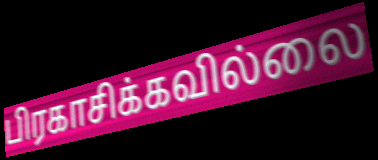
பிரகாசிக்கவில்லை